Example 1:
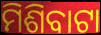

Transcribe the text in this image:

ମିଶିବାଟା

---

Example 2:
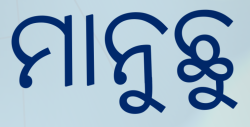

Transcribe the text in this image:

ମାନୁଛୁ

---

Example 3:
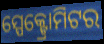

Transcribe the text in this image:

ସ୍ପେକ୍ଟ୍ରୋମିଟର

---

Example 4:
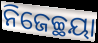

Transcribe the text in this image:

ନିଜେଚ୍ଛୟା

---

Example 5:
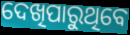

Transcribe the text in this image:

ଦେଖିପାରୁଥିବେ